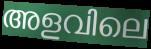
അളവിലെ